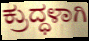
ಕ್ರುದ್ಧಳಾಗಿ